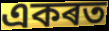
একৰত